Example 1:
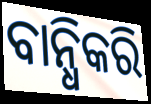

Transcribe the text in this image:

ବାନ୍ଧିକରି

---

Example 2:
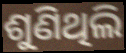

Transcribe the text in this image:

ଶୁଣିଥିଲି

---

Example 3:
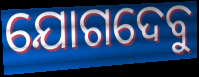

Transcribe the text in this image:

ଯୋଗଦେବୁ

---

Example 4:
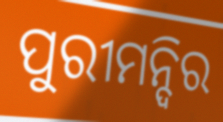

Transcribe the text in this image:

ପୁରୀମନ୍ଦିର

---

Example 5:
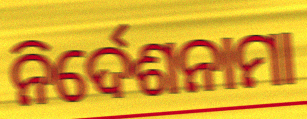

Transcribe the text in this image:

ନିର୍ଦେଶନାମା